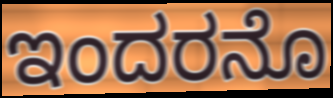
ಇಂದರನೊ